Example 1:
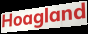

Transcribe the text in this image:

Hoagland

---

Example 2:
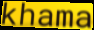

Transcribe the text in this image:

khama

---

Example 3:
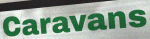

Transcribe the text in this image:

Caravans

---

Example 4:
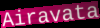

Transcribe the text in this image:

Airavata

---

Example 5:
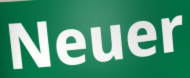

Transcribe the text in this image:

Neuer